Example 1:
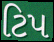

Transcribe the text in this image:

ટિપ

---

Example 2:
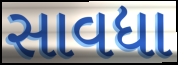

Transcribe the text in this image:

સાવદ્યા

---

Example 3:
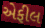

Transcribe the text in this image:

એફીલ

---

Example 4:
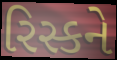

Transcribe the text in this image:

રિસ્કને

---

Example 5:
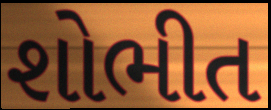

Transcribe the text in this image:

શોભીત